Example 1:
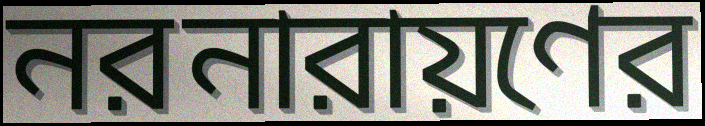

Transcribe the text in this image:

নরনারায়ণের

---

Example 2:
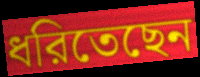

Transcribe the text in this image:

ধরিতেছেন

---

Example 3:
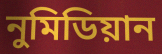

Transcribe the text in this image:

নুমিডিয়ান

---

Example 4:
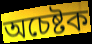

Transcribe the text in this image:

অচেষ্টক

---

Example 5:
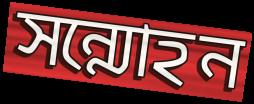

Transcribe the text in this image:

সন্মোহন